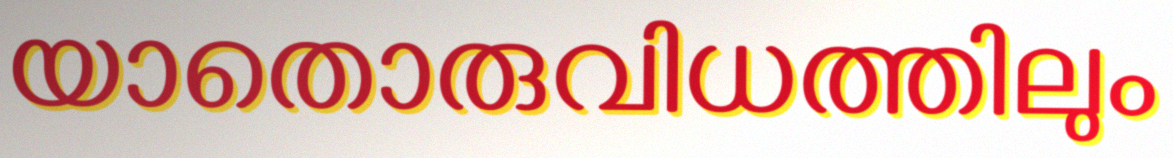
യാതൊരുവിധത്തിലും